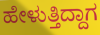
ಹೇಳುತ್ತಿದ್ದಾಗ